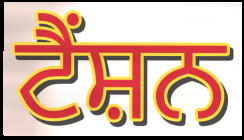
ਟੈਂਸ਼ਨ